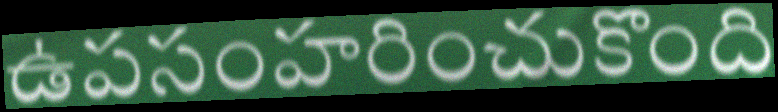
ఉపసంహరించుకొంది